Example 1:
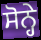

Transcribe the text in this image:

ਸੋਨ੍ਹੇ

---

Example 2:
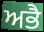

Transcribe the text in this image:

ਅਭੈ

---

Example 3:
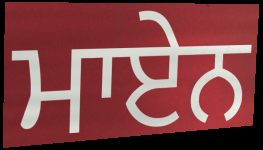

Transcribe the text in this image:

ਮਾਏਨ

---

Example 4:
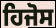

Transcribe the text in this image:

ਹਿਜੋਸ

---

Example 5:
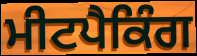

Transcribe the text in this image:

ਮੀਟਪੈਕਿੰਗ